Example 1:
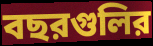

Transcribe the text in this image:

বছরগুলির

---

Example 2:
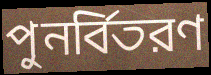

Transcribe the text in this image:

পুনর্বিতরণ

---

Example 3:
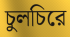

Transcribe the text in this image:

চুলচিরে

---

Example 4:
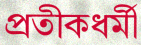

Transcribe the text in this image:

প্রতীকধর্মী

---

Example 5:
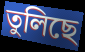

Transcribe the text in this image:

তুলিছে